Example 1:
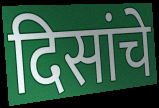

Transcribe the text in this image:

दिसांचे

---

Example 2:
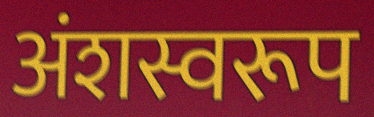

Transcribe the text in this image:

अंशस्वरूप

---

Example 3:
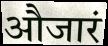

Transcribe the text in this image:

औजारं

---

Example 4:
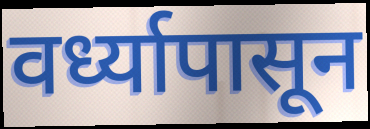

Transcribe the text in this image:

वर्ध्यापासून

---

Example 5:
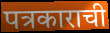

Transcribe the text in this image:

पत्रकाराची